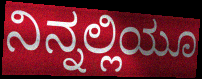
ನಿನ್ನಲ್ಲಿಯೂ